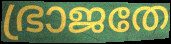
ഭ്രാജതേ